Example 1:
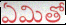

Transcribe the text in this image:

ఏమితో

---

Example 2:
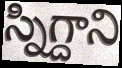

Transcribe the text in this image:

స్నిగ్దాని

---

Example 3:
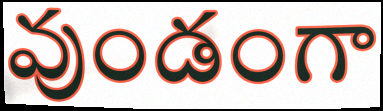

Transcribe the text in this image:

వుండంగా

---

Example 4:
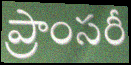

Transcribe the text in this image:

ప్రాంసరీ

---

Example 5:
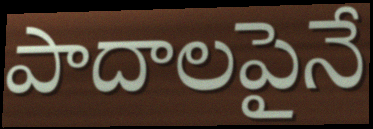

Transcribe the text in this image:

పాదాలపైనే